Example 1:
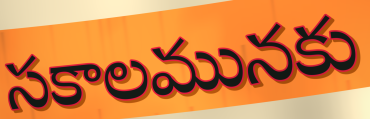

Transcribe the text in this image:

సకాలమునకు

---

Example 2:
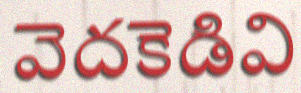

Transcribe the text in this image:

వెదకెడివి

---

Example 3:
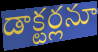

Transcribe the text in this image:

డాక్టర్లనూ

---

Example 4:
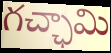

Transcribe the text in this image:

గచ్ఛామి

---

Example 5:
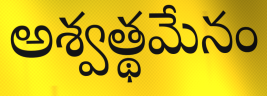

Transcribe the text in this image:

అశ్వత్థమేనం